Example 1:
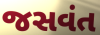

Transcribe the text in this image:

જસવંત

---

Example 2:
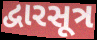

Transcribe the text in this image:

દ્વારસૂત્ર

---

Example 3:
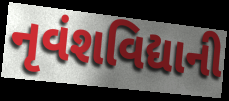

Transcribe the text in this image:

નૃવંશવિદ્યાની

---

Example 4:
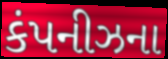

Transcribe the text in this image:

કંપનીઝના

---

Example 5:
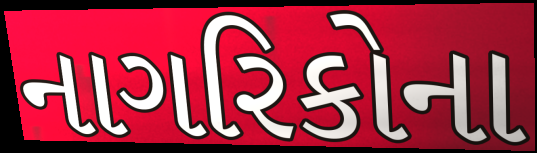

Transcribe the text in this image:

નાગરિકોના